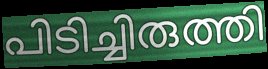
പിടിച്ചിരുത്തി